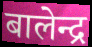
बालेन्द्र